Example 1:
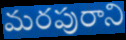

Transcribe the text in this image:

మరపురాని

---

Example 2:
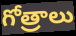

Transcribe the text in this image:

గోత్రాలు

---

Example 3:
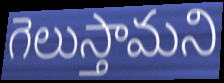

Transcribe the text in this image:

గెలుస్తామని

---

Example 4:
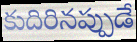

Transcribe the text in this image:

కుదిరినప్పుడే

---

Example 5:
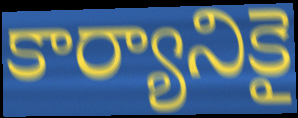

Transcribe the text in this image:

కార్యానికై